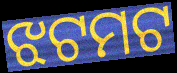
ଝଟମଟ